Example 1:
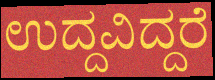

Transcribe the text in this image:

ಉದ್ದವಿದ್ದರೆ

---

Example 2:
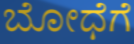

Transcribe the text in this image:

ಬೋಧೆಗೆ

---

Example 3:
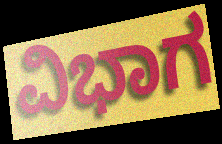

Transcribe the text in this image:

ವಿಭಾಗ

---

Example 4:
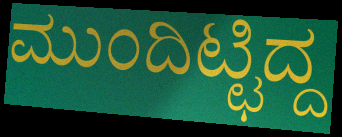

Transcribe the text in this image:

ಮುಂದಿಟ್ಟಿದ್ದ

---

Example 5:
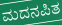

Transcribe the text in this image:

ಮದನಪಿತ